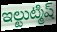
ఇల్టుట్మిష్